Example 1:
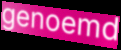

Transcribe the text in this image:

genoemd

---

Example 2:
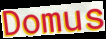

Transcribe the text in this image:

Domus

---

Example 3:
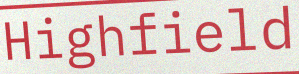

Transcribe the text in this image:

Highfield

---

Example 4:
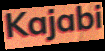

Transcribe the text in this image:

Kajabi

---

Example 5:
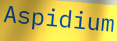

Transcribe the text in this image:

Aspidium